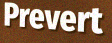
Prevert